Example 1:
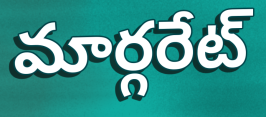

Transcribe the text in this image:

మార్గరేట్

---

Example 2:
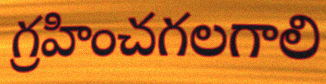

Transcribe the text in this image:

గ్రహించగలగాలి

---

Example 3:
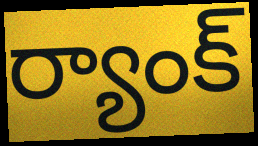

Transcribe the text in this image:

ర్యాంక్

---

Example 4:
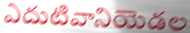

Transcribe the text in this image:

ఎదుటివానియెడల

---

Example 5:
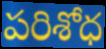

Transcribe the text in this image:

పరిశోధ